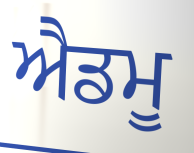
ਐਡਮੂ